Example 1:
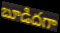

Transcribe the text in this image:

బూడిదగా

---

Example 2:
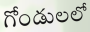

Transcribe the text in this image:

గోండులలో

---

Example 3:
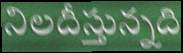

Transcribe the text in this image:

నిలదీస్తున్నది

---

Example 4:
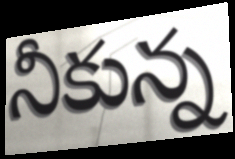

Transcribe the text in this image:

నీకున్న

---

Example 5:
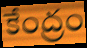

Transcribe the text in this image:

కేంద్రం